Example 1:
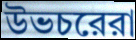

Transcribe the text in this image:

উভচরেরা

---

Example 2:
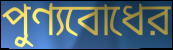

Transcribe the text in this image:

পুণ্যবোধের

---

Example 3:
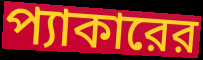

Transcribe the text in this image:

প্যাকারের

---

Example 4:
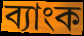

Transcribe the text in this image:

ব্যাংক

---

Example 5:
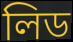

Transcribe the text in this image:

লিড